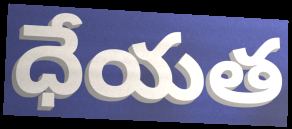
ధేయత